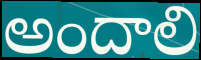
అందాలి